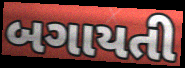
બગાયતી